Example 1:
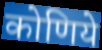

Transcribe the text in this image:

कोणिये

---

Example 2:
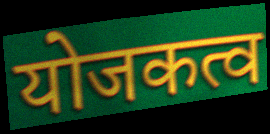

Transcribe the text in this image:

योजकत्व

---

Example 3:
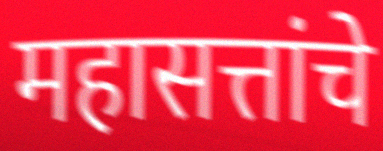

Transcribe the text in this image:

महासत्तांचे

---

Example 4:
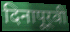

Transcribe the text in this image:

दिनापूर्वी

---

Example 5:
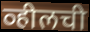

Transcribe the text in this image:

व्हीलची